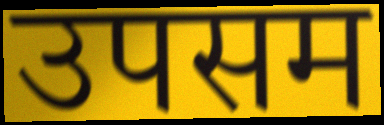
उपसम